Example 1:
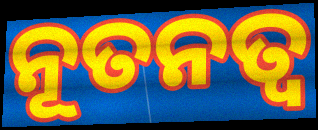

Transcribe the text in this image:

ନୂତନତ୍ୱ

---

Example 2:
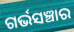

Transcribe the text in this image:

ଗର୍ଭସଞ୍ଚାର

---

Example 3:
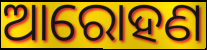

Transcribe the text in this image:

ଆରୋହଣ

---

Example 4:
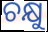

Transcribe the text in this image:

ଚକ୍ଷୁ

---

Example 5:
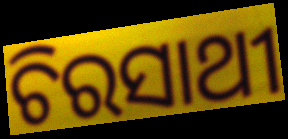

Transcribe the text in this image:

ଚିରସାଥୀ